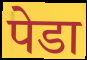
पेडा